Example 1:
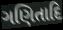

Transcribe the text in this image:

ગણિતાદિ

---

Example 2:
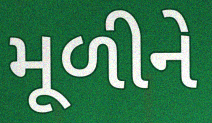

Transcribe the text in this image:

મૂળીને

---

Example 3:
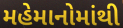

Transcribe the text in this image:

મહેમાનોમાંથી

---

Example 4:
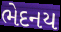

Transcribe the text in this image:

ભેદનય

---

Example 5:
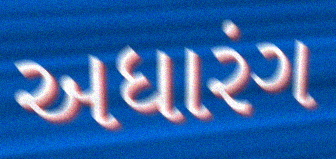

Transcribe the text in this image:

અધારંગ